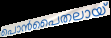
പൊൻപൈതലായ്